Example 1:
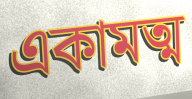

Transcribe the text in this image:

একামত্ম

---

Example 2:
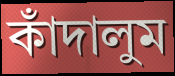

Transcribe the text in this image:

কাঁদালুম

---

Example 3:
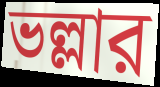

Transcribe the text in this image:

ভল্লার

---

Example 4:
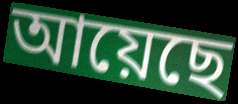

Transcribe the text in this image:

আয়েছে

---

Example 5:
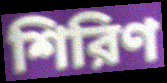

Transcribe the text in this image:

শিরিণ